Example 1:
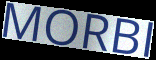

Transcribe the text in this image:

MORBI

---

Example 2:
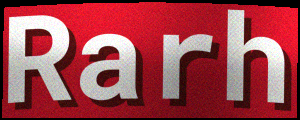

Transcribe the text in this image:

Rarh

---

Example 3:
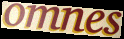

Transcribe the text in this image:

omnes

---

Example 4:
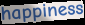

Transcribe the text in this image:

happiness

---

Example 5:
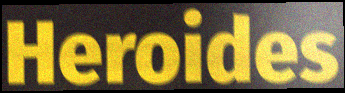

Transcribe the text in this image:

Heroides